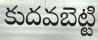
కుదవబెట్టి